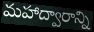
మహాద్వారాన్ని